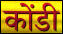
कोंडी